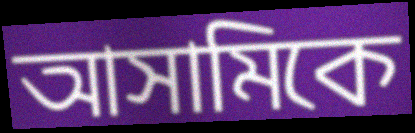
আসামিকে